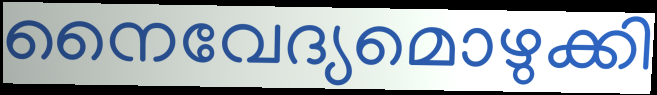
നൈവേദ്യമൊഴുക്കി